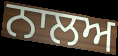
ਨਾਲਅ